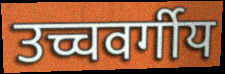
उच्चवर्गीय